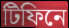
টিফিনে